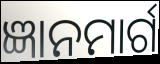
ଜ୍ଞାନମାର୍ଗ